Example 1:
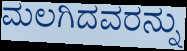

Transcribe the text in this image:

ಮಲಗಿದವರನ್ನು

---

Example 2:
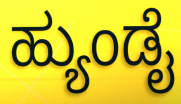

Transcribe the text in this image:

ಹ್ಯುಂಡೈ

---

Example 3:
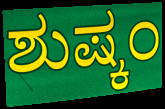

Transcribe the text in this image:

ಶುಷ್ಕಂ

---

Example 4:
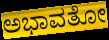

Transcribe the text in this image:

ಅಭಾವತೋ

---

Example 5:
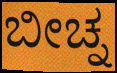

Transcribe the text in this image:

ಬೀಚ್ನ